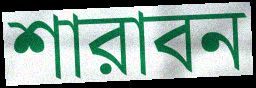
শারাবন